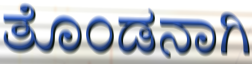
ತೊಂಡನಾಗಿ